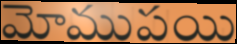
మోముపయి